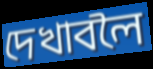
দেখাবলৈ